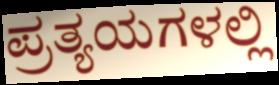
ಪ್ರತ್ಯಯಗಳಲ್ಲಿ